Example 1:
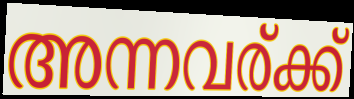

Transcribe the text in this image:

അന്നവര്ക്ക്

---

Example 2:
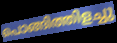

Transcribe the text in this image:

പൊങ്ങിത്തിളച്ചു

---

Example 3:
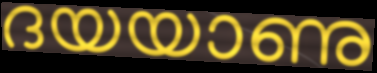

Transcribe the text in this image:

ദയയാണു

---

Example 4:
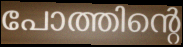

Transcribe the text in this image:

പോത്തിന്റെ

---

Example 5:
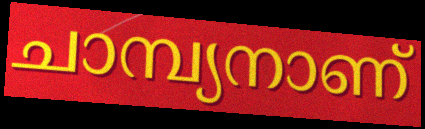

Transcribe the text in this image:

ചാമ്പ്യനാണ്